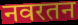
नवरतन